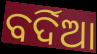
ବର୍ଦିଆ